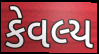
કેવલ્ય